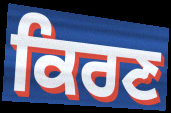
ਕਿਰਣ